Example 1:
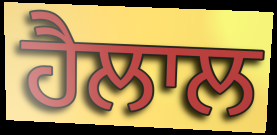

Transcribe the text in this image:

ਹੈਲਾਲ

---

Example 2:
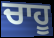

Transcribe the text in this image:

ਚਾਹੂ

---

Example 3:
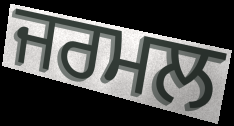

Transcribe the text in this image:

ਜਰਮਲ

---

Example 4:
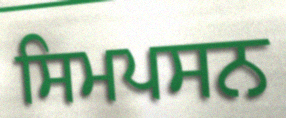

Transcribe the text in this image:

ਸਿਮਪਸਨ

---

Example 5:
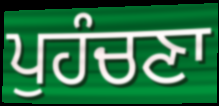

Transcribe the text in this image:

ਪੁਹੰਚਣਾ